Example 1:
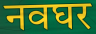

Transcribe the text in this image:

नवघर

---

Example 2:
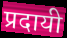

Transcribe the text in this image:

प्रदायी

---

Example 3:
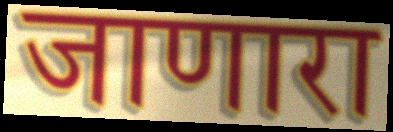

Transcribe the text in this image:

जाणारा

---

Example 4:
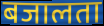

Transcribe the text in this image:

बजालता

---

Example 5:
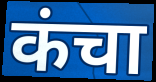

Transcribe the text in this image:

कंचा